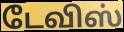
டேவிஸ்